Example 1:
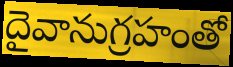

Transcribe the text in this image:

దైవానుగ్రహంతో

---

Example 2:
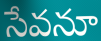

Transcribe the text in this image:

సేవనూ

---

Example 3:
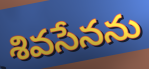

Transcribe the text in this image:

శివసేనను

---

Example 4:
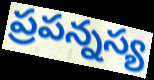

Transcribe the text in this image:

ప్రపన్నస్య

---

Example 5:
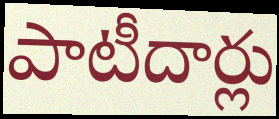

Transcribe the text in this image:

పాటీదార్లు